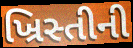
ખ્રિસ્તીની